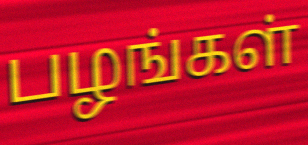
பழங்கள்